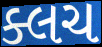
ક્લચ